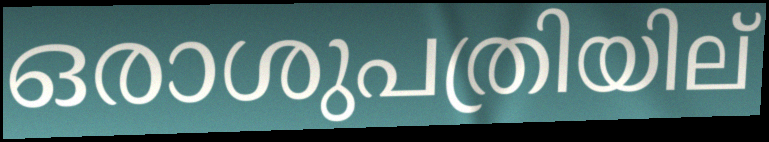
ഒരാശുപത്രിയില്